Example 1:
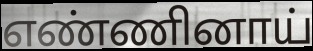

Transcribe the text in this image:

எண்ணினாய்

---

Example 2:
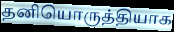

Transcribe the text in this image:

தனியொருத்தியாக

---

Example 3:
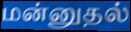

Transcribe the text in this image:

மன்னுதல்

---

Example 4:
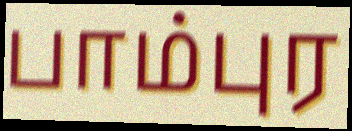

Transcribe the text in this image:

பாம்புர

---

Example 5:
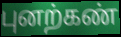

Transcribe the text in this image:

புனற்கண்